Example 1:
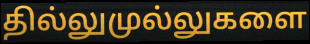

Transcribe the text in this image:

தில்லுமுல்லுகளை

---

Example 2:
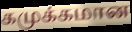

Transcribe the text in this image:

கமுக்கமான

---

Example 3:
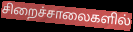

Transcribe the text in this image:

சிறைச்சாலைகளில்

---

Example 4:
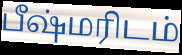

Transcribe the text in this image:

பீஷ்மரிடம்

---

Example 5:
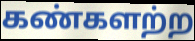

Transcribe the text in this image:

கண்களற்ற